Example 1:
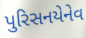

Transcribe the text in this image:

પુરિસનયેનેવ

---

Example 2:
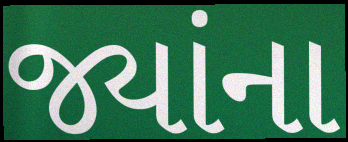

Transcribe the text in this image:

જ્યાંના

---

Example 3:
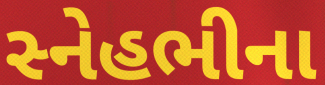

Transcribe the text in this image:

સ્નેહભીના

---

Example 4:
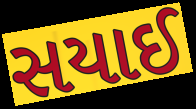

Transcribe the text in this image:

સયાઈ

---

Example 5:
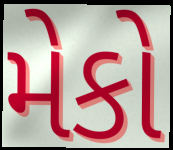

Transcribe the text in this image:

મેકો